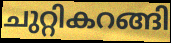
ചുറ്റികറങ്ങി